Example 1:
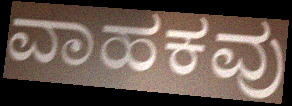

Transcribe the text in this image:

ವಾಹಕವು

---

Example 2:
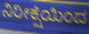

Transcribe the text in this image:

ನಿರೀಕ್ಷೆಯಿಂದ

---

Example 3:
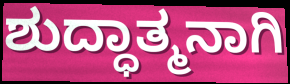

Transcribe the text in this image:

ಶುದ್ಧಾತ್ಮನಾಗಿ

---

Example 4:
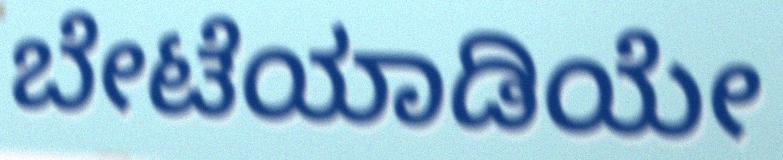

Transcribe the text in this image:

ಬೇಟೆಯಾಡಿಯೇ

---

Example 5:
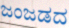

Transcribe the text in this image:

ಜಂಜಡದ